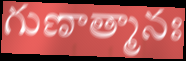
గుణాత్మానః